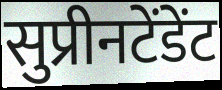
सुप्रीनटेंडेंट